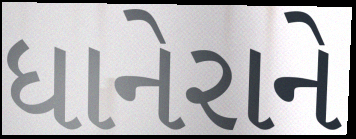
ધાનેરાને